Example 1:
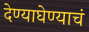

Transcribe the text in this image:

देण्याघेण्याचं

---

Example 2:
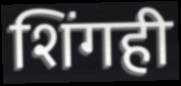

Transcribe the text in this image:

शिंगही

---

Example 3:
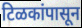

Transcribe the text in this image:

टिळकांपासून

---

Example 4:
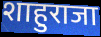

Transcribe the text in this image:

शाहुराजा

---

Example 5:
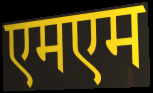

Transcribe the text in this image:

एमएम